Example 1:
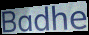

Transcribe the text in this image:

Badhe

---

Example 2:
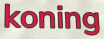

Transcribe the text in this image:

koning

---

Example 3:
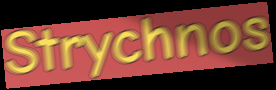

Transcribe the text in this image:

Strychnos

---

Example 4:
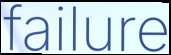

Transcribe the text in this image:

failure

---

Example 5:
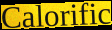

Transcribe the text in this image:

Calorific